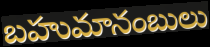
బహుమానంబులు